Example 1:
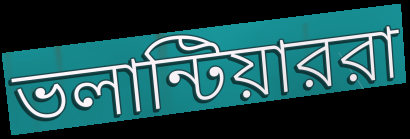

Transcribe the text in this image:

ভলান্টিয়াররা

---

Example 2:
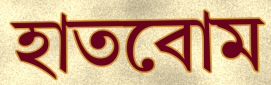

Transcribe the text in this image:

হাতবোম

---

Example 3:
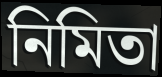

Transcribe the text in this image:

নিমিতা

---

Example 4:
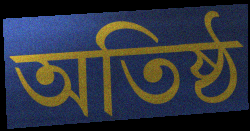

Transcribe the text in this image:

অতিষ্ঠ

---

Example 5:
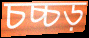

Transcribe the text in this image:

চচ্চড়